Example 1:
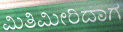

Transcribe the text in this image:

ಮಿತಿಮೀರಿದಾಗ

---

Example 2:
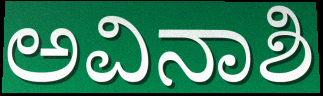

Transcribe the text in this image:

ಅವಿನಾಶಿ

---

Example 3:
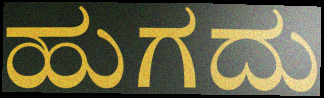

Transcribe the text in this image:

ಹುಗದು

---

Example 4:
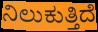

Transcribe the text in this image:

ನಿಲುಕುತ್ತಿದೆ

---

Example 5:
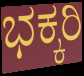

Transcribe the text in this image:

ಭಕ್ಕರಿ